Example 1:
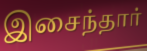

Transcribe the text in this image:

இசைந்தார்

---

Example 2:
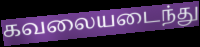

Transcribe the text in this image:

கவலையடைந்து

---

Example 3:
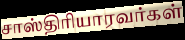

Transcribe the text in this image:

சாஸ்திரியாரவர்கள்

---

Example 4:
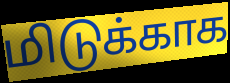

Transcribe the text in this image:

மிடுக்காக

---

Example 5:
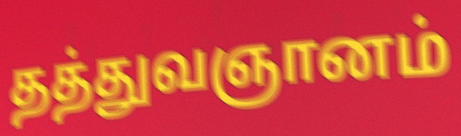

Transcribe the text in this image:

தத்துவஞானம்